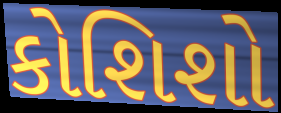
કોશિશો